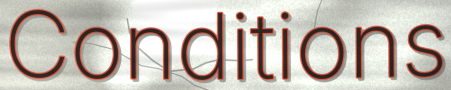
Conditions